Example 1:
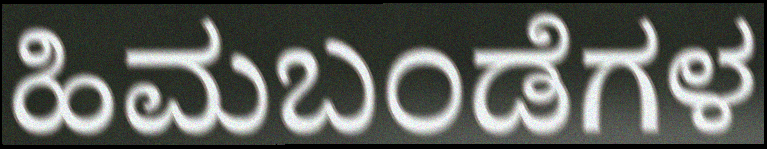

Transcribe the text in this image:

ಹಿಮಬಂಡೆಗಳ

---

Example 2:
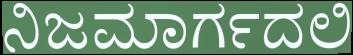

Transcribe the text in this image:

ನಿಜಮಾರ್ಗದಲಿ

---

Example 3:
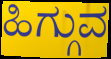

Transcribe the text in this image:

ಹಿಗ್ಗುವ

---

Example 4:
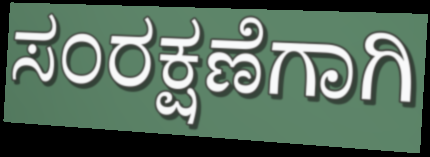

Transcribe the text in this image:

ಸಂರಕ್ಷಣೆಗಾಗಿ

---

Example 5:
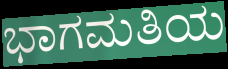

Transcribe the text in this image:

ಭಾಗಮತಿಯ